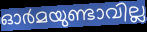
ഓർമയുണ്ടാവില്ല